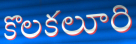
కొలకలూరి